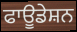
ਫਾਊਡੇਸ਼ਨ